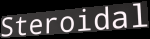
Steroidal